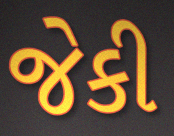
જેકી